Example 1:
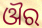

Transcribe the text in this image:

ଔର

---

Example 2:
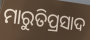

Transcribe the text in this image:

ମାରୁତିପ୍ରସାଦ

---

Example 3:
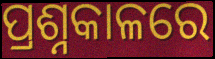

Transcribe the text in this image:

ପ୍ରଶ୍ନକାଳରେ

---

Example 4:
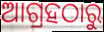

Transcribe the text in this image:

ଆଗ୍ରହଠାରୁ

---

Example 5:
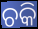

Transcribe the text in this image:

ଚକି